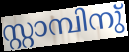
സ്റ്റാമ്പിനു്